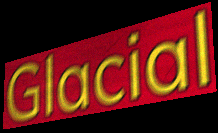
Glacial